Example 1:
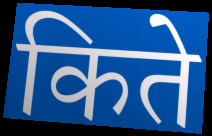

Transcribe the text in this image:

किते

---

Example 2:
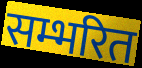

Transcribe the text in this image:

सम्भरित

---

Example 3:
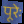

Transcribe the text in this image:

पूरेः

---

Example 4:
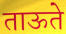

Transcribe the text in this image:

ताऊते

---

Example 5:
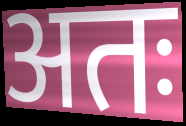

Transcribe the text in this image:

अतः